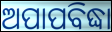
ଅପାପବିଦ୍ଧା